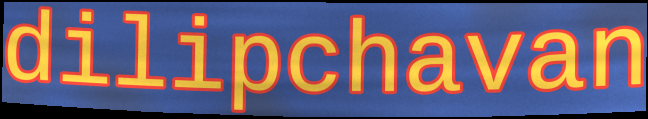
dilipchavan